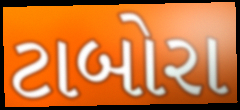
ટાબોરા